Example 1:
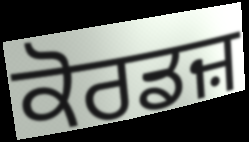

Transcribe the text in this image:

ਕੋਰਡਜ਼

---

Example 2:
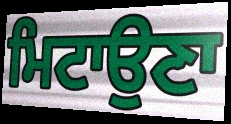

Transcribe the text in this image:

ਮਿਟਾਉਣਾ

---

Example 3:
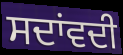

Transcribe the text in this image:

ਸਦਾਂਵਦੀ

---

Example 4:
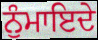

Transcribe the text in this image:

ਨੁੰਮਾਇਦੇ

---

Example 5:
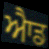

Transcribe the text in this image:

ਐਾਡ